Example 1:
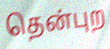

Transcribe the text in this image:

தென்புற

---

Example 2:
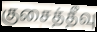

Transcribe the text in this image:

குசைத்தீவு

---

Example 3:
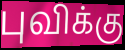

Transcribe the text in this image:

புவிக்கு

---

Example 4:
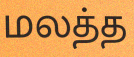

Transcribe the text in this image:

மலத்த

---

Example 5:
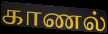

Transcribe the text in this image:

காணல்